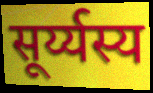
सूर्य्यस्य